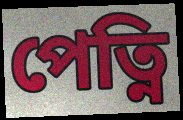
পেত্নি